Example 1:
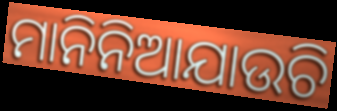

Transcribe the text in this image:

ମାନିନିଆଯାଉଚି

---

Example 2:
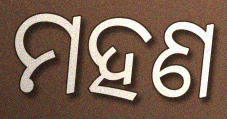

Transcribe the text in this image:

ମହଣ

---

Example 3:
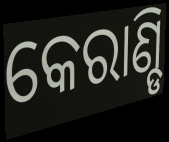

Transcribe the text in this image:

କେରାଣ୍ଡି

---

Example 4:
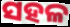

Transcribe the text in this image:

ସହଳ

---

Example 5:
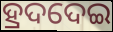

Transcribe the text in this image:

ହ୍ରଦଦେଇ